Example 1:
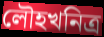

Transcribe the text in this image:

লৌহখনিত্র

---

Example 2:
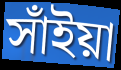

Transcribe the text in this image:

সাঁইয়া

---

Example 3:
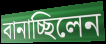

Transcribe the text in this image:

বানাচ্ছিলেন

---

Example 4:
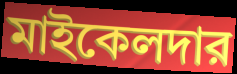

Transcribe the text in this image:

মাইকেলদার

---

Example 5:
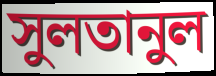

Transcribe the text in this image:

সুলতানুল